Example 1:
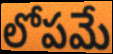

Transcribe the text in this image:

లోపమే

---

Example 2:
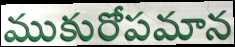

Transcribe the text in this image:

ముకురోపమాన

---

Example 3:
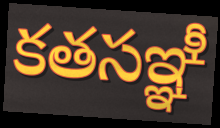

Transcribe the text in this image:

కతసఞ్ఞీ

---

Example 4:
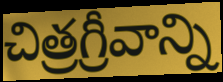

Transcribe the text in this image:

చిత్రగ్రీవాన్ని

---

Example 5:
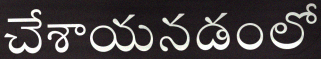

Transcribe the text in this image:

చేశాయనడంలో